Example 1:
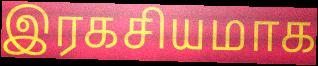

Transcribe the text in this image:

இரகசியமாக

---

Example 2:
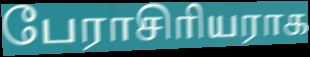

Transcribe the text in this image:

பேராசிரியராக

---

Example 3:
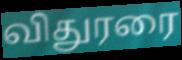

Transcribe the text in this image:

விதுரரை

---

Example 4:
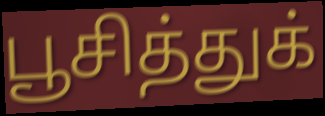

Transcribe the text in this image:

பூசித்துக்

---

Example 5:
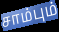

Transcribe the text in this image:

சாம்பும்